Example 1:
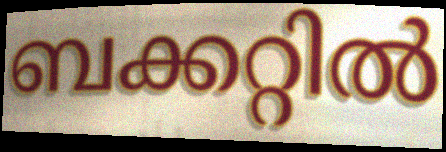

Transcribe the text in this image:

ബക്കറ്റിൽ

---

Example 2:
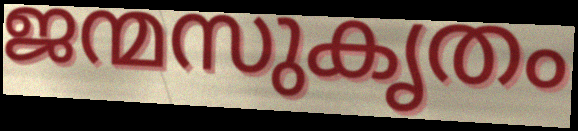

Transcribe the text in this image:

ജന്മസുകൃതം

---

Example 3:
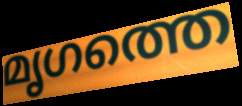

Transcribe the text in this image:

മൃഗത്തെ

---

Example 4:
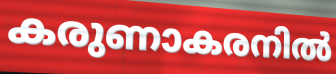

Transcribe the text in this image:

കരുണാകരനിൽ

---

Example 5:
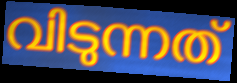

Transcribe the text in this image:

വിടുന്നത്